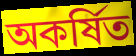
অকর্ষিত